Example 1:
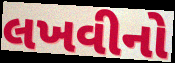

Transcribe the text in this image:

લખવીનો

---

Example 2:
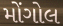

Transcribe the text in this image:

મોંગોલ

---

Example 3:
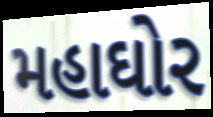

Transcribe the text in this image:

મહાઘોર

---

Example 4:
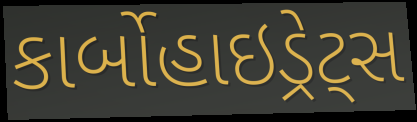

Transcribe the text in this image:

કાર્બોહાઇડ્રેટ્સ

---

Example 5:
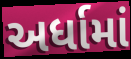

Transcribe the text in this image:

અર્ધામાં